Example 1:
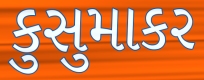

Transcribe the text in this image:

કુસુમાકર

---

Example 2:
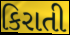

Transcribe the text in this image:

કિરાતી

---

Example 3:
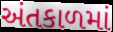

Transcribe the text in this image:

અંતકાળમાં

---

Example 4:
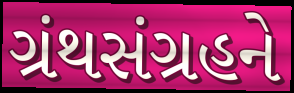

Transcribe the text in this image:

ગ્રંથસંગ્રહને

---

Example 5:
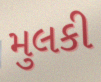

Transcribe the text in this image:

મુલકી